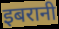
इबरानी